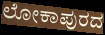
ಲೋಕಾಪುರದ